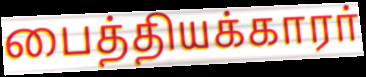
பைத்தியக்காரர்